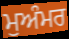
ਮੁਅੰਮਰ